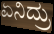
ಏನಿದ್ರು